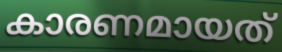
കാരണമായത്